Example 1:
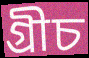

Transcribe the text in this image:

গ্ৰীচ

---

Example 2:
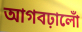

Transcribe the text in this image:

আগবঢ়ালোঁ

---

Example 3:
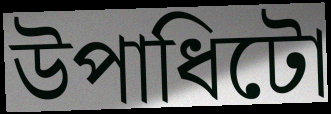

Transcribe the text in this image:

উপাধিটো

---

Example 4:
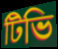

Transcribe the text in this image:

টিভি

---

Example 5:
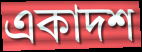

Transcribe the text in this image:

একাদশ